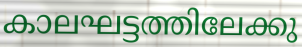
കാലഘട്ടത്തിലേക്കു